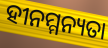
ହୀନମ୍ମନ୍ୟତା